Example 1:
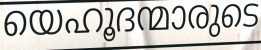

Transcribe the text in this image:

യെഹൂദന്മാരുടെ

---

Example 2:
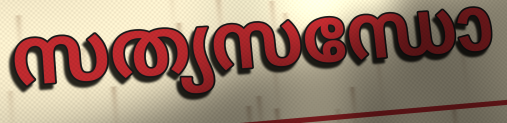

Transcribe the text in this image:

സത്യസന്ധോ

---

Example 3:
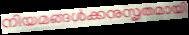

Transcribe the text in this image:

നിയമങ്ങൾക്കനുസൃതമായി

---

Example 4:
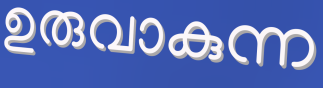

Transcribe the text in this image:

ഉരുവാകുന്ന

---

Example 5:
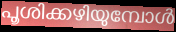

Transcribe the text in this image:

പൂശിക്കഴിയുമ്പോൾ